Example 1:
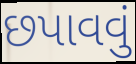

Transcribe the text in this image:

છપાવવું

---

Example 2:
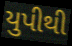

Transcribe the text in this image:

યુપીથી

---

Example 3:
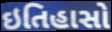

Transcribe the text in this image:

ઇતિહાસો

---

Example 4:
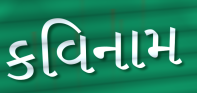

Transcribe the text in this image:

કવિનામ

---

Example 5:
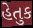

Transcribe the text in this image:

હેતુક